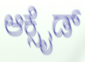
ಆಕ್ಸೈಡ್